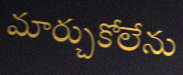
మార్చుకోలేను